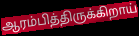
ஆரம்பித்திருக்கிறாய்